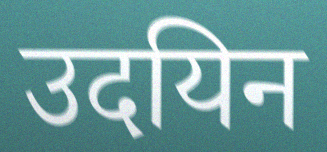
उदयिन